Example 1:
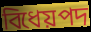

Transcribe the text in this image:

বিধেয়পদ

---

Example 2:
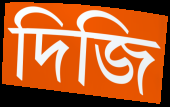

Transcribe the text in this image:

দিজি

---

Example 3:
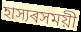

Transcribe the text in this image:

হাস্যৰসময়ী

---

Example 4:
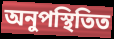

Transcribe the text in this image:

অনুপস্থিতিত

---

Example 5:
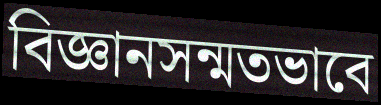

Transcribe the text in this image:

বিজ্ঞানসন্মতভাবে